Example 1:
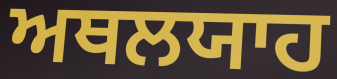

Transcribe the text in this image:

ਅਥਲਯਾਹ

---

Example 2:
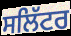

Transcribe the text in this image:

ਸਲਿੱਟਰ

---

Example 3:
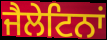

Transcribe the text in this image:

ਜੈਲੇਟਿਨਾਂ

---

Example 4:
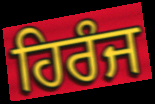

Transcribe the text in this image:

ਹਿਰੰਜ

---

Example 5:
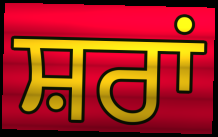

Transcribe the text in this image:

ਸ਼ਰਾਂ